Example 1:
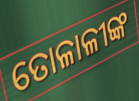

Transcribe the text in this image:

ତୋଳାଳୀଙ୍କ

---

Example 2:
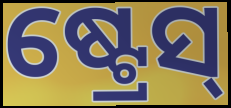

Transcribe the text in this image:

ଷ୍ଟ୍ରେସ୍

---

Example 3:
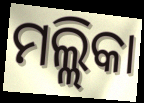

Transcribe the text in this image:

ମଲ୍ଲିକା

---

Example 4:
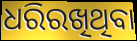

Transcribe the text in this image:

ଧରିରଖିଥିବା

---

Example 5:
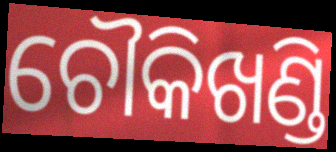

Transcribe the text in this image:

ଚୌକିଖଣ୍ଡି